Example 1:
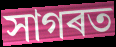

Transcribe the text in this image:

সাগৰত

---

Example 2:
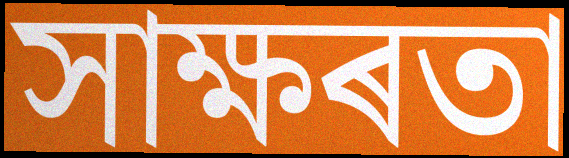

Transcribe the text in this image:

সাক্ষৰতা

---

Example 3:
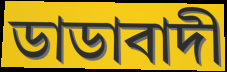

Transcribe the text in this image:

ডাডাবাদী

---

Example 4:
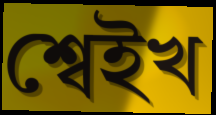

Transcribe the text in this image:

শ্বেইখ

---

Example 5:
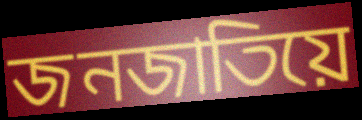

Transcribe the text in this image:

জনজাতিয়ে